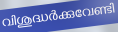
വിശുദ്ധർക്കുവേണ്ടി